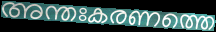
അന്തഃകരണത്തെ